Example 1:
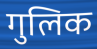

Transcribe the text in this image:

गुलिक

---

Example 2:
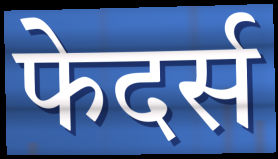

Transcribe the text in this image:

फेदर्स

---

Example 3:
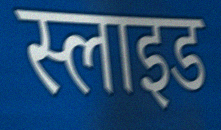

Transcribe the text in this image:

स्लाइड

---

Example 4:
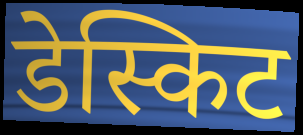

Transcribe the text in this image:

डेस्किट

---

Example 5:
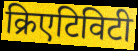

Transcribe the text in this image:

क्रिएटिविटी